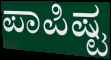
ಪಾಪಿಷ್ಟ